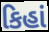
કિહાં